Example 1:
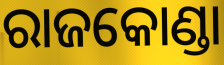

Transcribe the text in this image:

ରାଜକୋଣ୍ଡା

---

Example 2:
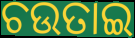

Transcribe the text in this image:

ଚଉତାଇ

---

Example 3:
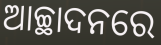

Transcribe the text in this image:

ଆଚ୍ଛାଦନରେ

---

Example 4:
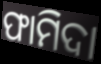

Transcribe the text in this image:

ଫାମିଦା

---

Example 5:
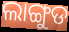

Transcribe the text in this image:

ଲାଙ୍ଗୁଡ